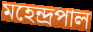
মহেন্দ্রপাল